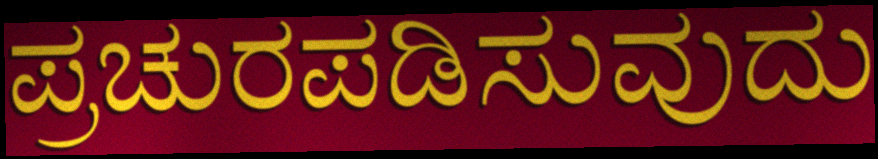
ಪ್ರಚುರಪಡಿಸುವುದು